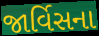
જાર્વિસના